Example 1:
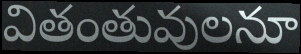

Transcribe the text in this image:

వితంతువులనూ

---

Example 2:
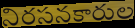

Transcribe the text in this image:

నిరసనకారుల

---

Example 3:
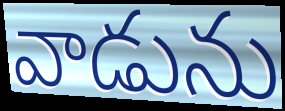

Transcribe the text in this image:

వాడును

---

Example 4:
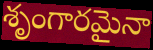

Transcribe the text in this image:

శృంగారమైనా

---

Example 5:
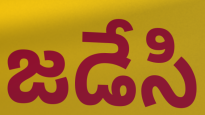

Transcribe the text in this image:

జడేసి